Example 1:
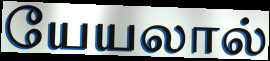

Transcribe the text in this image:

யேயலால்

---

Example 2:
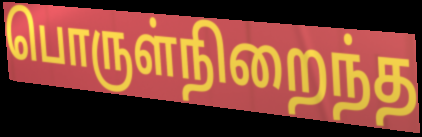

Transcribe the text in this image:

பொருள்நிறைந்த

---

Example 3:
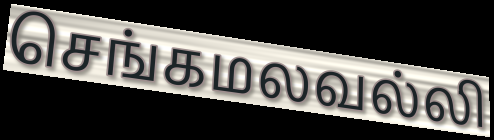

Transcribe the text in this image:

செங்கமலவல்லி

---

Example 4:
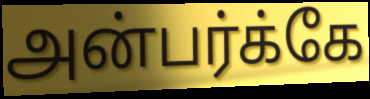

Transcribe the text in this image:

அன்பர்க்கே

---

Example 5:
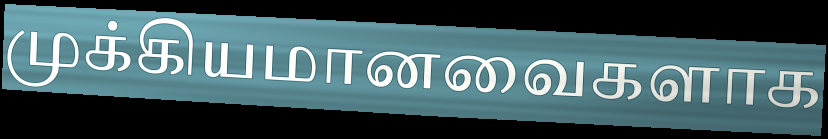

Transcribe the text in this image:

முக்கியமானவைகளாக